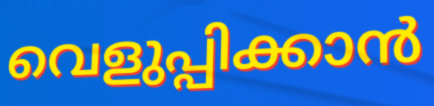
വെളുപ്പിക്കാൻ